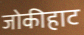
जोकीहाट